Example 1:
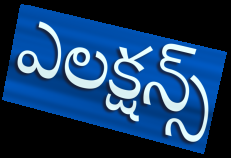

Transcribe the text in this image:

ఎలక్షన్స్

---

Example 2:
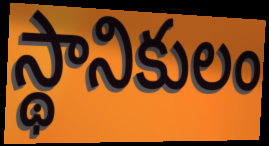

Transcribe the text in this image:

స్థానికులం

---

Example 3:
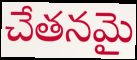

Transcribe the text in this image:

చేతనమై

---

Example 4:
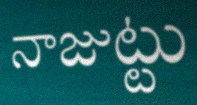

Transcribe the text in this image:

నాజుట్టు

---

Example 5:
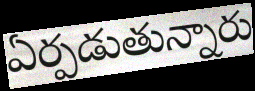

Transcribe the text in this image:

ఏర్పడుతున్నారు